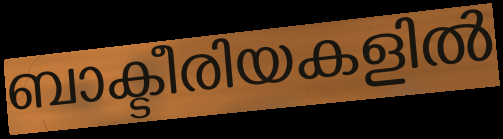
ബാക്ടീരിയകളിൽ